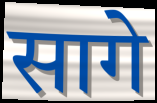
सागे